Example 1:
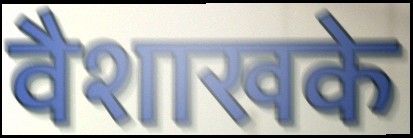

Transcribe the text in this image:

वैशाखके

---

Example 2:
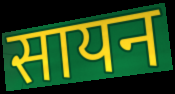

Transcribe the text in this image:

सायन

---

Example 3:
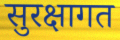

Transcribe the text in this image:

सुरक्षागत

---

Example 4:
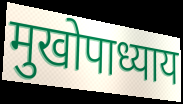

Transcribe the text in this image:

मुखोपाध्याय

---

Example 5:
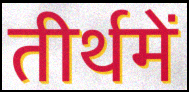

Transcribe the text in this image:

तीर्थमें